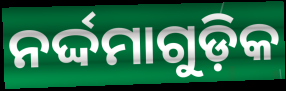
ନର୍ଦ୍ଦମାଗୁଡ଼ିକ